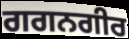
ਗਗਨਗੀਰ